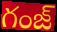
గంజ్